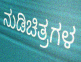
ನುಡಿಚಿತ್ರಗಳ